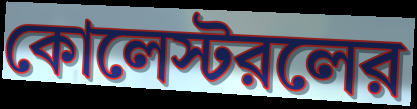
কোলেস্টরলের